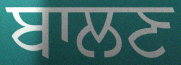
ਬਾਲਣ